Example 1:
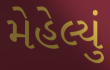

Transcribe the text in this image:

મેહેલ્યું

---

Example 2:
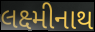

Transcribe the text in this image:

લક્ષ્મીનાથ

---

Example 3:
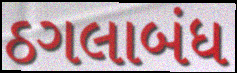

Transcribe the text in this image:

ઠગલાબંધ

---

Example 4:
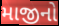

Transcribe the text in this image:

માજીનો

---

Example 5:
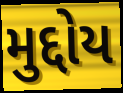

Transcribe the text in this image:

મુદ્દોય